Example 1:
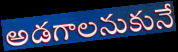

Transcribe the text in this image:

అడగాలనుకునే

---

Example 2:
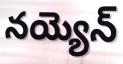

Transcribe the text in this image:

నయ్యెన్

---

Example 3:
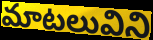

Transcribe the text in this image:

మాటలువిని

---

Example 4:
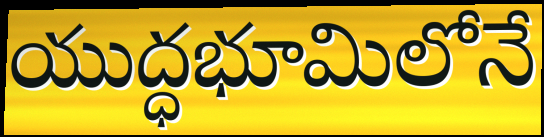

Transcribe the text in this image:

యుద్ధభూమిలోనే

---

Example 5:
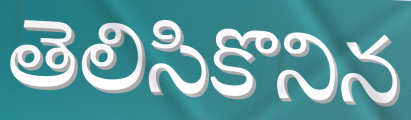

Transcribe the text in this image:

తెలిసికొనిన